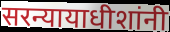
सरन्यायाधीशांनी